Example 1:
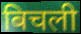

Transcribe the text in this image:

बिचली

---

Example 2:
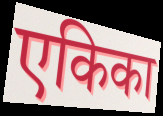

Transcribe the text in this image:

एकिका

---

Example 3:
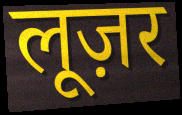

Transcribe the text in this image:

लूज़र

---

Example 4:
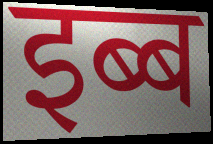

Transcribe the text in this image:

इब्ब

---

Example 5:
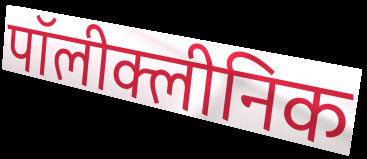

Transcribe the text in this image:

पॉलीक्लीनिक